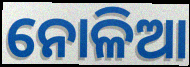
ନୋଳିଆ